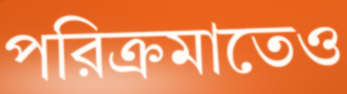
পরিক্রমাতেও